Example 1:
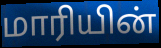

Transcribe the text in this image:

மாரியின்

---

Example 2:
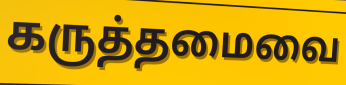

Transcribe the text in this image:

கருத்தமைவை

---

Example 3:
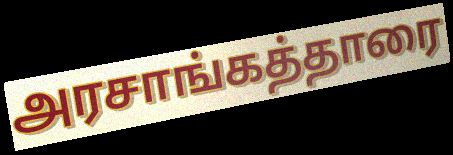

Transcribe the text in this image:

அரசாங்கத்தாரை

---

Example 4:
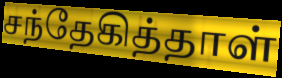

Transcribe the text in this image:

சந்தேகித்தாள்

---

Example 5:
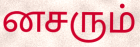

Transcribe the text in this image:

னசரும்